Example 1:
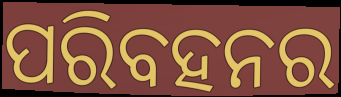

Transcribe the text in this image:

ପରିବହନର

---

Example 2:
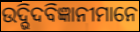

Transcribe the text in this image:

ଉଦ୍ଭିଦବିଜ୍ଞାନୀମାନେ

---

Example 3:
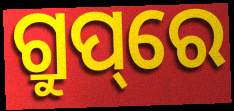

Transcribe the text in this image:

ଗ୍ରୁପ୍‌ରେ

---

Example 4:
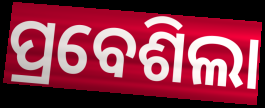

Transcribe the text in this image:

ପ୍ରବେଶିଲା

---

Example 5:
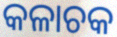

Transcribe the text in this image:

କଳାଚକ